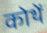
कोथें